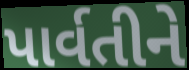
પાર્વતીને